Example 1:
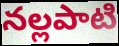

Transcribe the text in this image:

నల్లపాటి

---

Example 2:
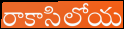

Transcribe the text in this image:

రాకాసిలోయ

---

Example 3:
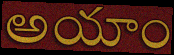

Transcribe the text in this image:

అయాం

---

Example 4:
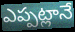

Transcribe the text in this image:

ఎప్పట్లానే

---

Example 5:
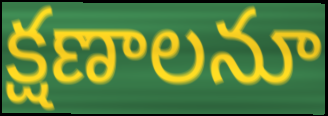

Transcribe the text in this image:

క్షణాలనూ